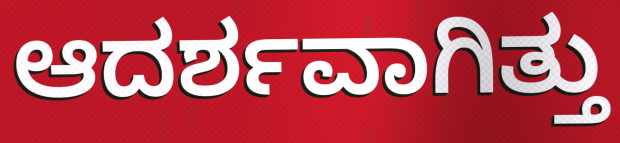
ಆದರ್ಶವಾಗಿತ್ತು